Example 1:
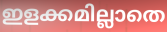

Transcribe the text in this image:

ഇളക്കമില്ലാതെ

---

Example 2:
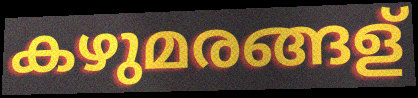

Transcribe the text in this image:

കഴുമരങ്ങള്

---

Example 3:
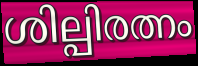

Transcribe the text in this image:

ശില്പിരത്നം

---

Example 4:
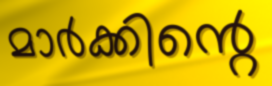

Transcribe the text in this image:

മാർക്കിന്റെ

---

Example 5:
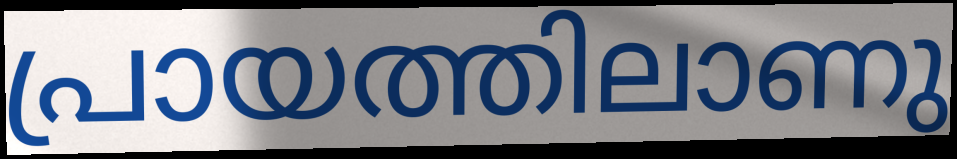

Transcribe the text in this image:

പ്രായത്തിലാണു